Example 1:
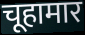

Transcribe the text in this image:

चूहामार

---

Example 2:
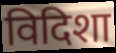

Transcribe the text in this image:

विदिशा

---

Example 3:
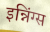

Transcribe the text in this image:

इन्निंग्स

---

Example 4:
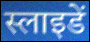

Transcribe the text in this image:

स्लाइडें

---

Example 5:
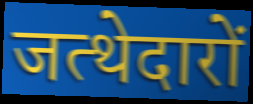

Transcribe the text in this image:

जत्थेदारों